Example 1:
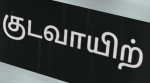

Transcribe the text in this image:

குடவாயிற்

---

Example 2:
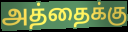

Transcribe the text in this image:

அத்தைக்கு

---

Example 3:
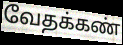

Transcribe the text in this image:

வேதக்கண்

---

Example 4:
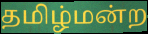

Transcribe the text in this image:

தமிழ்மன்ற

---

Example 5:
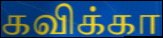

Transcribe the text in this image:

கவிக்கா